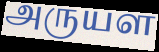
அருயள